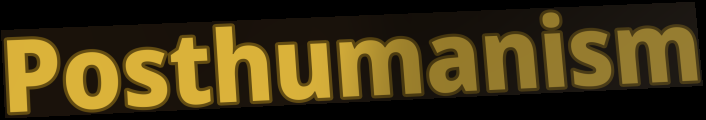
Posthumanism